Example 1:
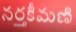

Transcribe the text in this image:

నర్తకీమణి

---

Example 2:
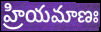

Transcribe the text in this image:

హ్రియమాణః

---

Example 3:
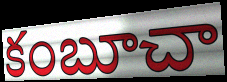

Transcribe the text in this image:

కంబూచా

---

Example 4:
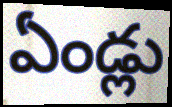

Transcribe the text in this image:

ఏండ్లు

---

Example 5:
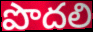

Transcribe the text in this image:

పొదలి